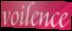
voilence